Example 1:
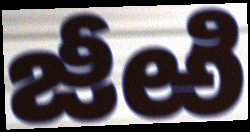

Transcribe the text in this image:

జీఱి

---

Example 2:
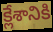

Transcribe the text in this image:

క్లేశానికి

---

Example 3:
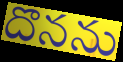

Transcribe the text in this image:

దొనను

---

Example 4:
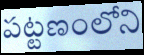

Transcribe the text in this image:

పట్టణంలోని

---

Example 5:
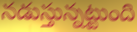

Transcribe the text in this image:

నడుస్తున్నట్టుంది